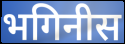
भगिनीस